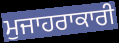
ਮੁਜਾਹਰਾਕਾਰੀ